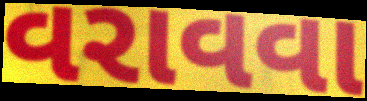
વરાવવા